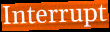
Interrupt